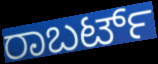
ರಾಬರ್ಟ್